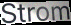
Strom